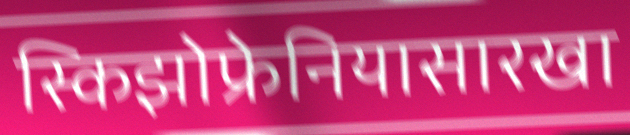
स्किझोफ्रेनियासारखा